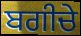
ਬਗੀਚੇ